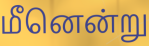
மீனென்று